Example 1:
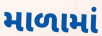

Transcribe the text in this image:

માળામાં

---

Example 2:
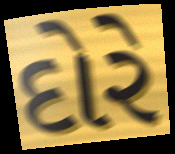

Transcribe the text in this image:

દોરે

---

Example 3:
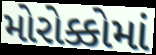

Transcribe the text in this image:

મોરોક્કોમાં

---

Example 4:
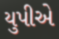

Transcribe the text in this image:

યુપીએ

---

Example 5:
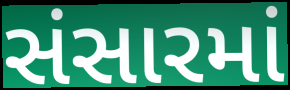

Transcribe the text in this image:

સંસારમાં